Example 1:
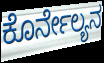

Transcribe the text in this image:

ಕೊರ್ನೇಲ್ಯನ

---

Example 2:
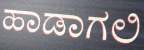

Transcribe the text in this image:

ಹಾಡಾಗಲಿ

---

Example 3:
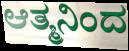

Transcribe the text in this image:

ಆತ್ಮನಿಂದ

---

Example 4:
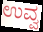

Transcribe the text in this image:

ಉವ್ವ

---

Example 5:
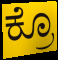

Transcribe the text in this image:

ಕ್ರೊ